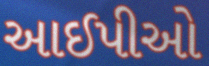
આઈપીઓ